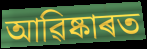
আৱিষ্কাৰত